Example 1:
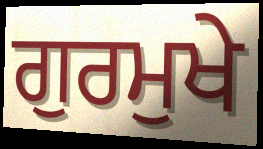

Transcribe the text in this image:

ਗੁਰਮੁਖੇ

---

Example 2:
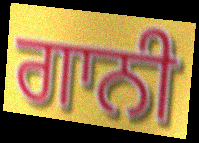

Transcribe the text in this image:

ਗਾਨੀ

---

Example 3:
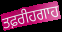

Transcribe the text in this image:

ਤਫ਼ਰੀਹਗਾਹ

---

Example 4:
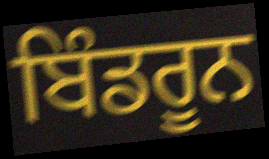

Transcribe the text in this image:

ਬਿੰਡਰੂਨ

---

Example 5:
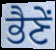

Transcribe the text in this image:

ਭੈਣੇਂ